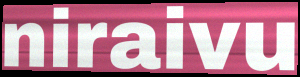
niraivu